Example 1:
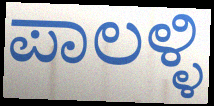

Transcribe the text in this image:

ಪಾಲಳ್ಳಿ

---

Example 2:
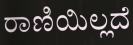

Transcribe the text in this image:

ರಾಣಿಯಿಲ್ಲದೆ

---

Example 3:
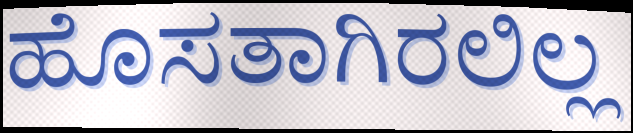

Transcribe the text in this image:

ಹೊಸತಾಗಿರಲಿಲ್ಲ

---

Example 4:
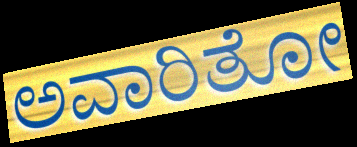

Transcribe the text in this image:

ಅವಾರಿತೋ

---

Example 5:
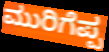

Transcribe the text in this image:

ಮುರಿಗೆಪ್ಪ